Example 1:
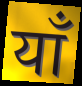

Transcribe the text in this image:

याँ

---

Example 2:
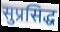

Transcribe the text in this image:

सुप्रसिद्ध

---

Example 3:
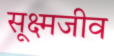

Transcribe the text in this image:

सूक्ष्मजीव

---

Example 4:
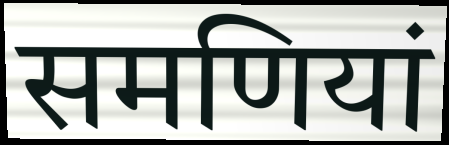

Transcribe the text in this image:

समणियां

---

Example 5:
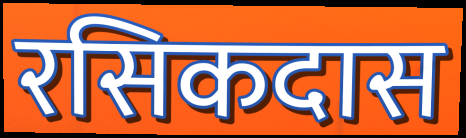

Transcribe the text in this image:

रसिकदास